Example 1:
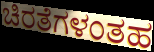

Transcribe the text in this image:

ಚಿರತೆಗಳಂತಹ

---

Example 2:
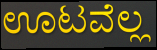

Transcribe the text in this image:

ಊಟವೆಲ್ಲ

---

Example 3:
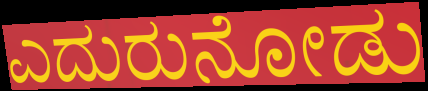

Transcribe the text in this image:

ಎದುರುನೋಡು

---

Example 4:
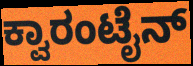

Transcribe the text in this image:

ಕ್ವಾರಂಟೈನ್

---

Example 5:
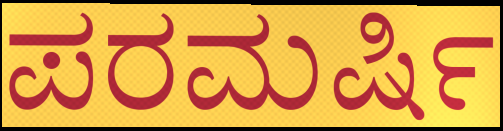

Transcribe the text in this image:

ಪರಮರ್ಷಿ